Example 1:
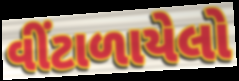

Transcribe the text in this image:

વીંટાળાયેલો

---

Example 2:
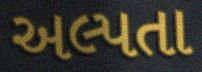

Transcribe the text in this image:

અલ્પતા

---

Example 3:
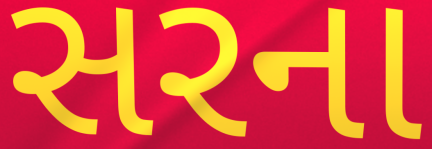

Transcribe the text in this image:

સરના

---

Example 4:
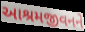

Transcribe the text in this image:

આશ્રમજીવનને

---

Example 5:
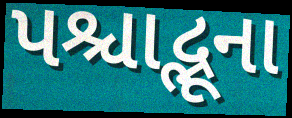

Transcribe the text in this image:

પશ્ચાદ્ભૂના